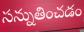
సన్నుతించడం